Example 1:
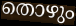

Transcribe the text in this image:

തൊഴും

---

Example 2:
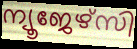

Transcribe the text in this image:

ന്യൂജേഴ്സി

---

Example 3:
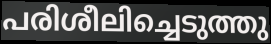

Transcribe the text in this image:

പരിശീലിച്ചെടുത്തു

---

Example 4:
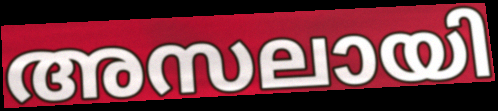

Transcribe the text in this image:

അസലായി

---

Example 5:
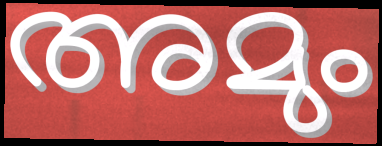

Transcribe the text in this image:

അമും